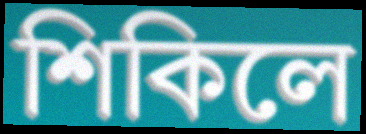
শিকিলে